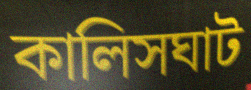
কালিসঘাট